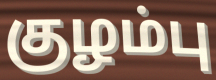
குழம்பு